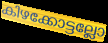
കിഴക്കോട്ടല്ലോ